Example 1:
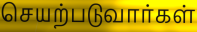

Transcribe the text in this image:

செயற்படுவார்கள்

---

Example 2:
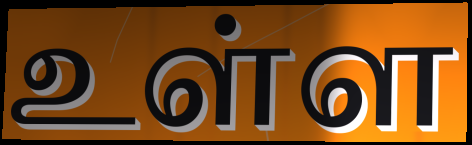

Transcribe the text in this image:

உள்ள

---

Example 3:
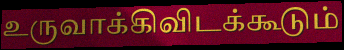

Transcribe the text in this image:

உருவாக்கிவிடக்கூடும்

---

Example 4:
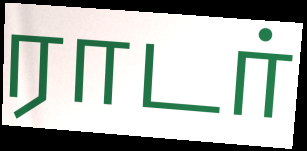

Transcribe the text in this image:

ராடர்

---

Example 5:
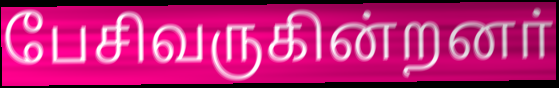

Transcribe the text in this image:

பேசிவருகின்றனர்